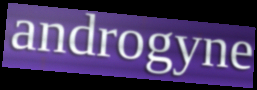
androgyne